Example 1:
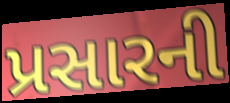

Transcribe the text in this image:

પ્રસારની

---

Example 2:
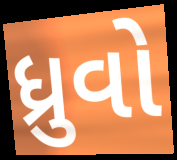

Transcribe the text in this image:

ધ્રુવો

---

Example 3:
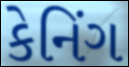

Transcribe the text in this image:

કેનિંગ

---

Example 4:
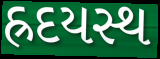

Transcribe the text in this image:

હ્રદયસ્થ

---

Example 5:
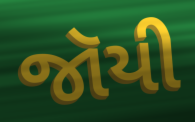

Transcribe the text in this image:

જૉયી